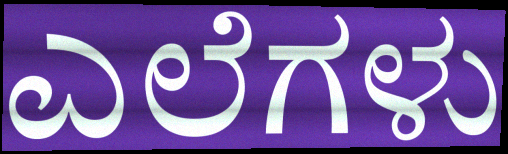
ಎಲೆಗಳು